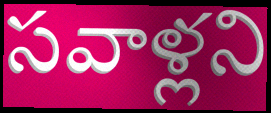
సవాళ్లని